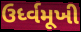
ઉર્ધ્વમૂખી